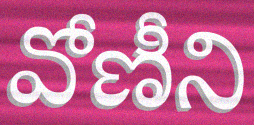
వోణీని